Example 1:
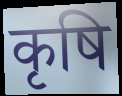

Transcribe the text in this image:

कृषि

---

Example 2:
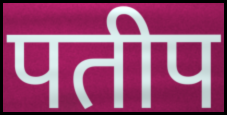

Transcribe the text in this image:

पतीप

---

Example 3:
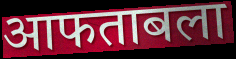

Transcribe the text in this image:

आफताबला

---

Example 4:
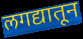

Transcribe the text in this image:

लगद्यातून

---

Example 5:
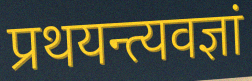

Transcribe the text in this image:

प्रथयन्त्यवज्ञां